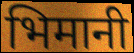
भिमानी